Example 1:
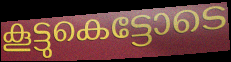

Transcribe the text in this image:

കൂട്ടുകെട്ടോടെ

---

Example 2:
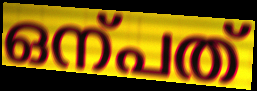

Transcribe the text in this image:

ഒന്പത്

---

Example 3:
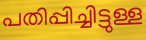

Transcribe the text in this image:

പതിപ്പിച്ചിട്ടുള്ള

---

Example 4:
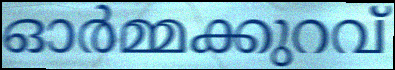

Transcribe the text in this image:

ഓർമ്മക്കുറവ്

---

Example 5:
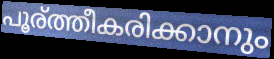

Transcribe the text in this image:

പൂര്ത്തീകരിക്കാനും